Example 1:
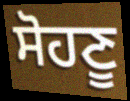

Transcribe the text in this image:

ਸੋਹਣੂ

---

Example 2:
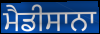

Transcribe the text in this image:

ਮੈਡੀਸਾਨਾ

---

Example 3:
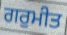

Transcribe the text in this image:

ਗਰੁਮੀਤ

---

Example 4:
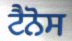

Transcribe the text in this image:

ਟੈਨੋਸ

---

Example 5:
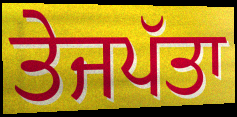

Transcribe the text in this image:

ਤੇਜਪੱਤਾ